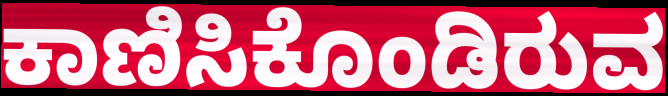
ಕಾಣಿಸಿಕೊಂಡಿರುವ